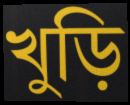
খুড়ি